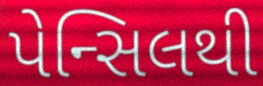
પેન્સિલથી